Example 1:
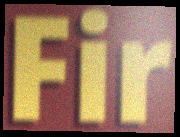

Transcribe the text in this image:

Fir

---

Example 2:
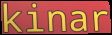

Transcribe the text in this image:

kinar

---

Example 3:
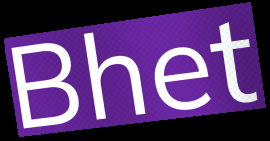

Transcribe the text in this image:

Bhet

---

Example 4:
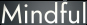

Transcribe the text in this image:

Mindful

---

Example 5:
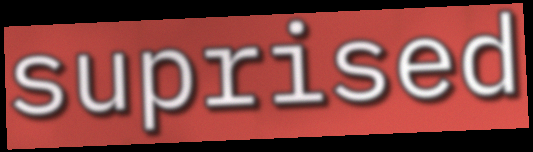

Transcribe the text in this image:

suprised